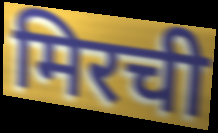
मिरची